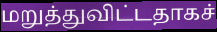
மறுத்துவிட்டதாகச்